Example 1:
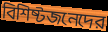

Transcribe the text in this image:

বিশিষ্টজনেদের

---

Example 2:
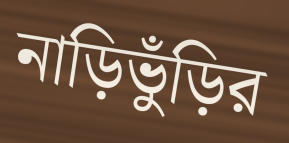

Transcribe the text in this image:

নাড়িভুঁড়ির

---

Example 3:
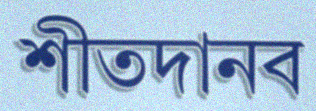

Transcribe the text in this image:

শীতদানব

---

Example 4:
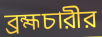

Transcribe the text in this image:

ব্রহ্মচারীর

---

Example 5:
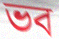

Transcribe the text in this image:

ভব